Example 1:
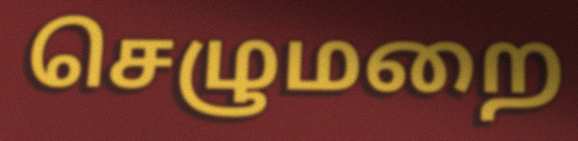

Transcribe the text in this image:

செழுமறை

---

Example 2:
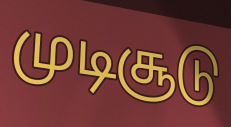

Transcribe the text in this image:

முடிசூடு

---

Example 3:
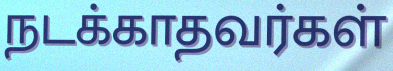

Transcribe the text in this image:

நடக்காதவர்கள்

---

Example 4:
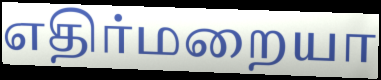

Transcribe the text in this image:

எதிர்மறையா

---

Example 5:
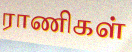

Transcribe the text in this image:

ராணிகள்